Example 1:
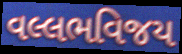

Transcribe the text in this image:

વલ્લભવિજય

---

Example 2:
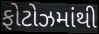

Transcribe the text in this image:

ફોટોઝમાંથી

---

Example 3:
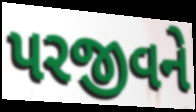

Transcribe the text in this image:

પરજીવને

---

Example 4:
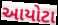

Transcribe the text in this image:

આયોટા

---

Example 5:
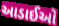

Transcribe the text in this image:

આડાઈઓ